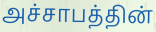
அச்சாபத்தின்